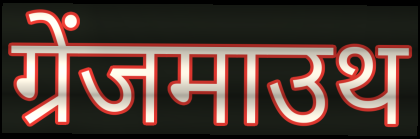
ग्रेंजमाउथ